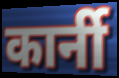
कार्नी